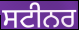
ਸਟੀਨਰ